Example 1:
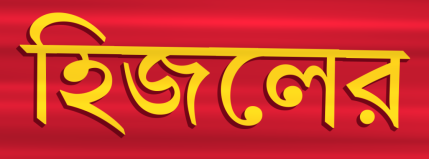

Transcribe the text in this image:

হিজলের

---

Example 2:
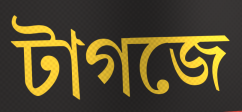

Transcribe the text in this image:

টাগজে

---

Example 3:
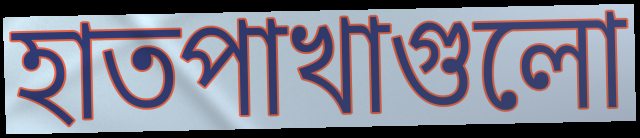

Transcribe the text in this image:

হাতপাখাগুলো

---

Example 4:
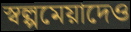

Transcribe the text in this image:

স্বল্পমেয়াদেও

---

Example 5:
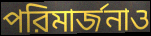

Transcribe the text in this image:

পরিমার্জনাও